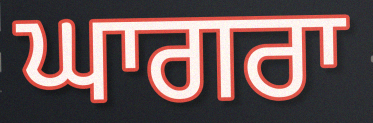
ਘਾਗਰਾ